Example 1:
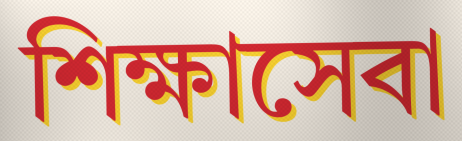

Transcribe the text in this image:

শিক্ষাসেবা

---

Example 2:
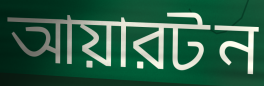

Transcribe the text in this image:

আয়ারটন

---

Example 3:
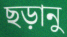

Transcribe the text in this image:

ছড়ানু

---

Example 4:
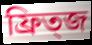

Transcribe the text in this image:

ফ্রিত্জ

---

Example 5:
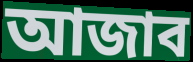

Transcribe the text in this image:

আজাব